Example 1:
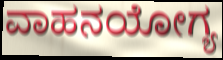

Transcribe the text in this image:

ವಾಹನಯೋಗ್ಯ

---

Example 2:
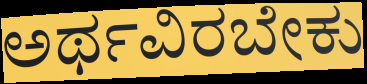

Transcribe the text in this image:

ಅರ್ಥವಿರಬೇಕು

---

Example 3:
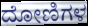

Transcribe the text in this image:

ದೋಣಿಗಳ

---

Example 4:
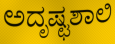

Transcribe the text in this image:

ಅದೃಷ್ಟಶಾಲಿ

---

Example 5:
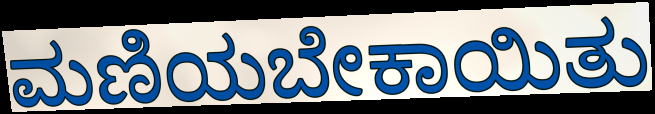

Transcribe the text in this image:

ಮಣಿಯಬೇಕಾಯಿತು